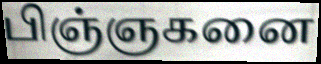
பிஞ்ஞகனை